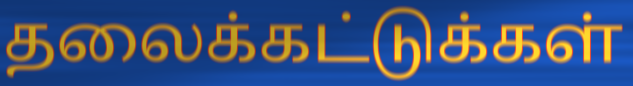
தலைக்கட்டுக்கள்